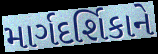
માર્ગદર્શિકાને